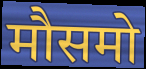
मौसमो